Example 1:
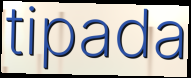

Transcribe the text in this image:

tipada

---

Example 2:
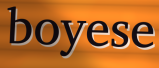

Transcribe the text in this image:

boyese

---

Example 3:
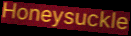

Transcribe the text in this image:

Honeysuckle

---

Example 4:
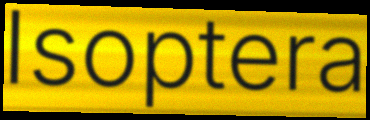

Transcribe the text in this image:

Isoptera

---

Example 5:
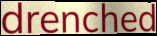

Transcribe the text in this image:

drenched